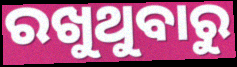
ରଖୁଥୁବାରୁ